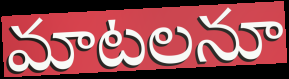
మాటలనూ